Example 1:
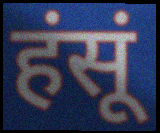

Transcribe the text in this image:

हंसूं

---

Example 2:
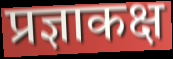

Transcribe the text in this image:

प्रज्ञाकक्ष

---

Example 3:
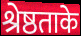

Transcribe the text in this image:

श्रेष्ठताके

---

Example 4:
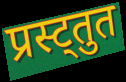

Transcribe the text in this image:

प्रस्ट्तुत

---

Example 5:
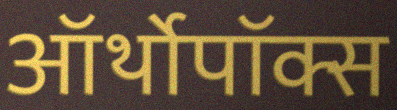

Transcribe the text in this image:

ऑर्थोपॉक्स